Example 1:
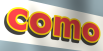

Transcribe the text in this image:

como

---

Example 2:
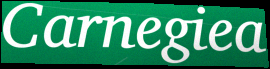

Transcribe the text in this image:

Carnegiea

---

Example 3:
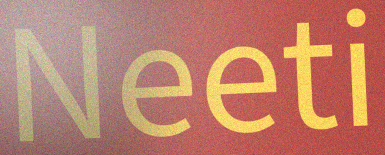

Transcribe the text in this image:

Neeti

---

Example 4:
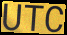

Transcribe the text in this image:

UTC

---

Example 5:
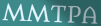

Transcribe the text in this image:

MMTPA